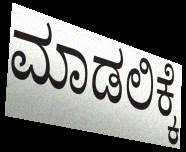
ಮಾಡಲಿಕ್ಕೆ